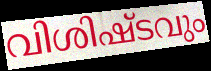
വിശിഷ്ടവും